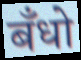
बँधो